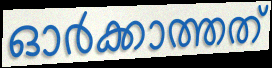
ഓർക്കാത്തത്